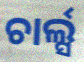
ଚାର୍ଲ୍ସ